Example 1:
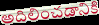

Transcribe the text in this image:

అదిలించడానికి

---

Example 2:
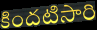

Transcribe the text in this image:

కిందటిసారి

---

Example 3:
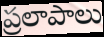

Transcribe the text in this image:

ప్రలాపాలు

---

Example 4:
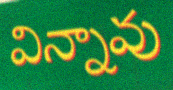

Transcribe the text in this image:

విన్నావు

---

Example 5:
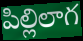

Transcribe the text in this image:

పిల్లిలాగ